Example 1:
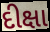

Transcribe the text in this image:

દીક્ષા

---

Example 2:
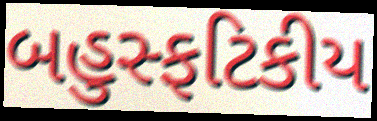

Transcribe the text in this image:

બહુસ્ફટિકીય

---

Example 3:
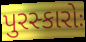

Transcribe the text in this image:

પુરસ્કારોઃ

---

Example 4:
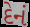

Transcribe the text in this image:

દેનં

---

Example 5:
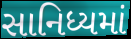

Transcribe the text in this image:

સાનિધ્યમાં